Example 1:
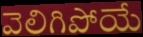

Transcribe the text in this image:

వెలిగిపోయే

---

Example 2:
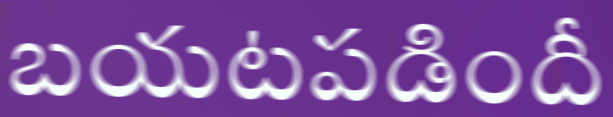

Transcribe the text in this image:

బయటపడిందీ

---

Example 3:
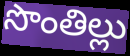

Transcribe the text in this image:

సొంతిల్లు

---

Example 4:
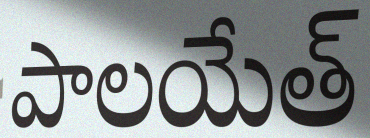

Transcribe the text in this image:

పాలయేత్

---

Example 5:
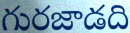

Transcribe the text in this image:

గురజాడది